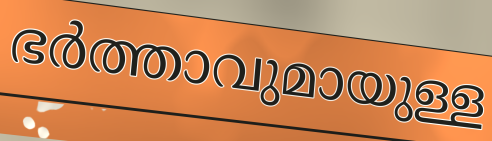
ഭർത്താവുമായുള്ള